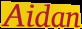
Aidan